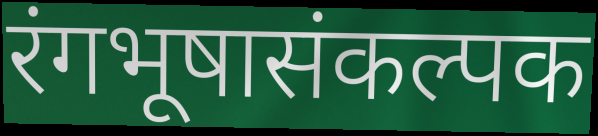
रंगभूषासंकल्पक